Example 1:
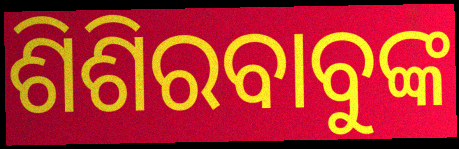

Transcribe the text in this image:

ଶିଶିରବାବୁଙ୍କ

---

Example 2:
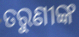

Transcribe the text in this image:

ତରୁଣୀଙ୍କ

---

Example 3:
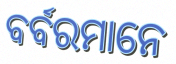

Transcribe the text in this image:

ବର୍ବରମାନେ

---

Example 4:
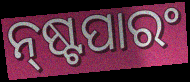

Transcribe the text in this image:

ନ୍‌ଷ୍ଟପାରଂ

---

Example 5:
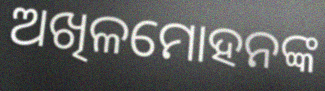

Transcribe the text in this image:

ଅଖିଳମୋହନଙ୍କ